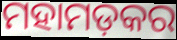
ମହାମଡ଼କର